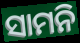
ସାମନି